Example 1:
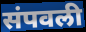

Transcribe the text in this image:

संपवली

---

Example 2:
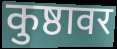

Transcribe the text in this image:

कुष्ठावर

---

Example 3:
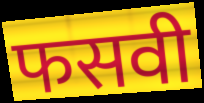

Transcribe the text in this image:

फसवी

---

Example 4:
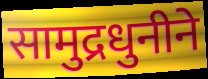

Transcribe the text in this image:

सामुद्रधुनीने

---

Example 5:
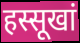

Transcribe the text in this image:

हस्सूखां